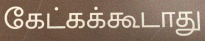
கேட்கக்கூடாது